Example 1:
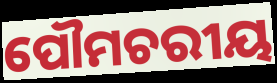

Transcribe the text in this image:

ପୌମଚରୀୟ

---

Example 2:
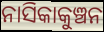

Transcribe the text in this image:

ନାସିକାକୁଞ୍ଚନ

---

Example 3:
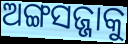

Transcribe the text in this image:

ଅଙ୍ଗସଜ୍ଜାକୁ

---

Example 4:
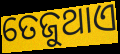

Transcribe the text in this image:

ତେଜୁଥାଏ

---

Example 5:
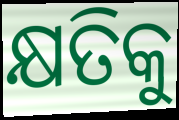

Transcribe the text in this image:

କ୍ଷତିକୁ